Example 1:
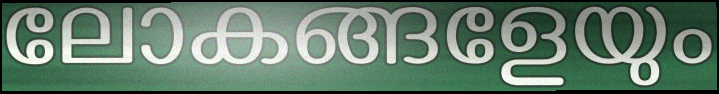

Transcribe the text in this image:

ലോകങ്ങളേയും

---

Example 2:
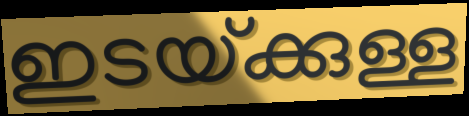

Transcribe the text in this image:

ഇടയ്‌ക്കുള്ള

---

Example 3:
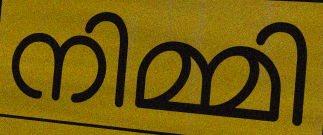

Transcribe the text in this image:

നിമ്മി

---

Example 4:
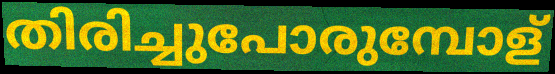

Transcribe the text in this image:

തിരിച്ചുപോരുമ്പോള്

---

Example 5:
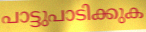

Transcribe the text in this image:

പാട്ടുപാടിക്കുക